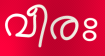
വീരഃ